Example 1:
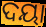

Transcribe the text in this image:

ଦୟା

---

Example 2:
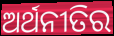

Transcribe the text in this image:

ଅର୍ଥନୀତିର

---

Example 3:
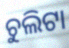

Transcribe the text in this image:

ଚୁଲିଟା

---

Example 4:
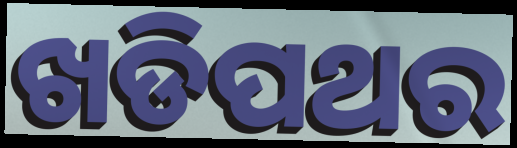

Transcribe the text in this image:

ଖଡିପଥର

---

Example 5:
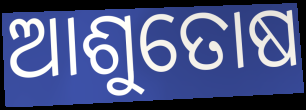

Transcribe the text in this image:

ଆଶୁତୋଷ